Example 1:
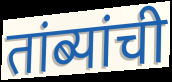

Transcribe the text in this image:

तांब्यांची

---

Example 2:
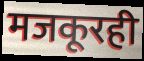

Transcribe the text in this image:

मजकूरही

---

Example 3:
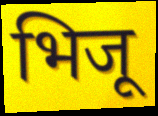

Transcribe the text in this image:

भिजू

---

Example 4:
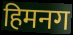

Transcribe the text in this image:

हिमनग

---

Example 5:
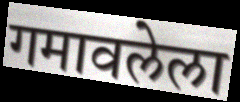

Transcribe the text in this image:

गमावलेला